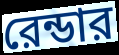
রেন্ডার